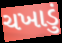
ચખાડું